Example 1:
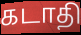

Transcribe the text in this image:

கடாதி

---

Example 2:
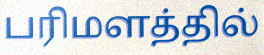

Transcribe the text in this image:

பரிமளத்தில்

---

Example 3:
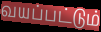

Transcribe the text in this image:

வயப்பட்டும்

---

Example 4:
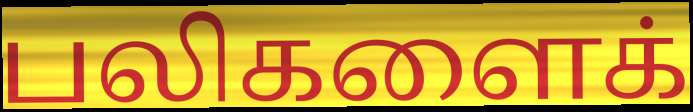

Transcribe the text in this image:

பலிகளைக்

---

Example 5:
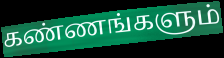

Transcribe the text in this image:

கண்ணங்களும்